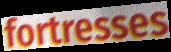
fortresses